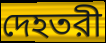
দেহতরী